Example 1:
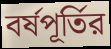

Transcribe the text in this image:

বর্ষপূর্তির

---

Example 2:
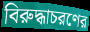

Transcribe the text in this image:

বিরুদ্ধাচরণের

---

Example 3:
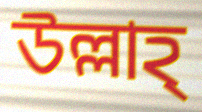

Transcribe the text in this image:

উল্লাহ্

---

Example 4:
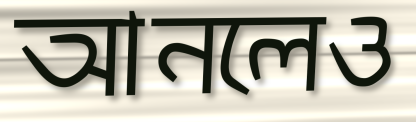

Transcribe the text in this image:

আনলেও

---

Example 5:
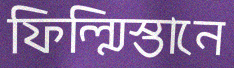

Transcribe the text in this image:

ফিল্মিস্তানে